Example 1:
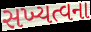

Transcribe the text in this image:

સખ્યત્વના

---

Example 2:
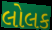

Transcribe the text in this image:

લોલક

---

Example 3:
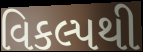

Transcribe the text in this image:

વિકલ્પથી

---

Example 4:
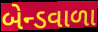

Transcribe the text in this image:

બેન્ડવાળા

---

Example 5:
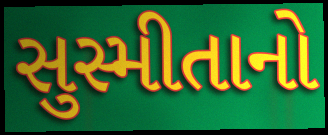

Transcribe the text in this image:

સુસ્મીતાનો